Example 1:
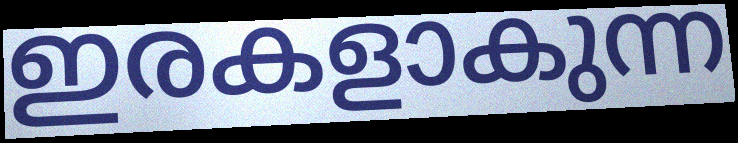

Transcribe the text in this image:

ഇരകളാകുന്ന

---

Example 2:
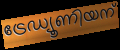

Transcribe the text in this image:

ട്രേഡ്യൂണിയന്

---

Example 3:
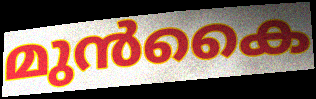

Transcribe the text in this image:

മുൻകൈ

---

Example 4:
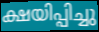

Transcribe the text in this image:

ക്ഷയിപ്പിച്ചു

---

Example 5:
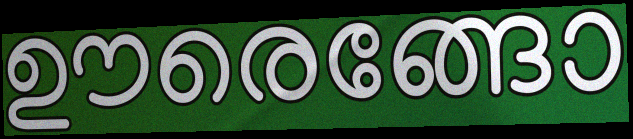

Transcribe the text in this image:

ഊരെങ്ങോ